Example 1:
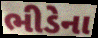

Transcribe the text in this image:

ભીડેના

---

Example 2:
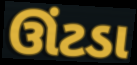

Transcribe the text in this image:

ઊંટડા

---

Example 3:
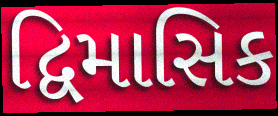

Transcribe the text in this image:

દ્વિમાસિક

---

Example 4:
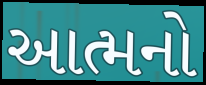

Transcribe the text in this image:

આત્મનો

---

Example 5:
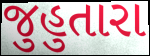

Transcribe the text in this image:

જુહુતારા